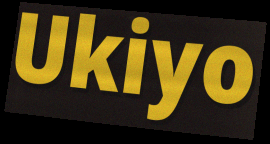
Ukiyo